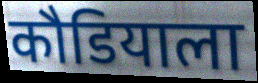
कौडियाला